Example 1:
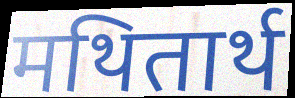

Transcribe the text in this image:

मथितार्थ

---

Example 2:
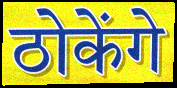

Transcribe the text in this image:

ठोकेंगे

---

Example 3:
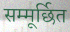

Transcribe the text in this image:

सम्मूर्छित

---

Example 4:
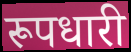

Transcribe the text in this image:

रूपधारी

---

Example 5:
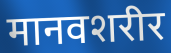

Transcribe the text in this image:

मानवशरीर